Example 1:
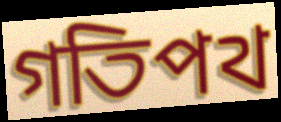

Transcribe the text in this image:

গতিপথ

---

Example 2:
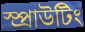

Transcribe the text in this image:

স্প্রাউটিং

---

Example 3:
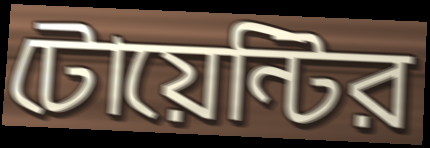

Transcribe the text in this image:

টোয়েন্টির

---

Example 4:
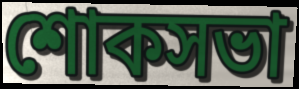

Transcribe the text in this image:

শোকসভা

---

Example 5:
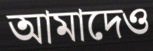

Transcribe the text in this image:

আমাদেও